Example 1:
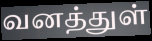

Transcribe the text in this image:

வனத்துள்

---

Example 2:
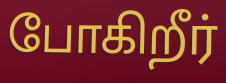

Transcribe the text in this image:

போகிறீர்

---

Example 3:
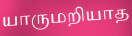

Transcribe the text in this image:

யாருமறியாத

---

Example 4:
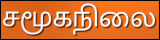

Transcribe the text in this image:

சமூகநிலை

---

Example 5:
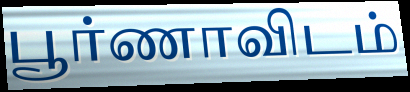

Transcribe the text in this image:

பூர்ணாவிடம்